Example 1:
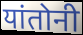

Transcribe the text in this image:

यांतोनी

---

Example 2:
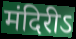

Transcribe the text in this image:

मंदिरीऽ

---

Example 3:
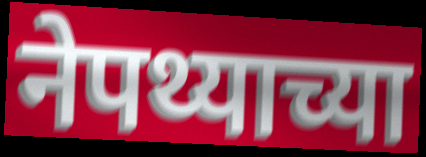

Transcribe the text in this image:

नेपथ्याच्या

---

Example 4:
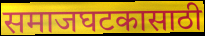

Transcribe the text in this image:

समाजघटकासाठी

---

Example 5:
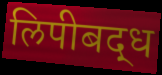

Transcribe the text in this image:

लिपीबद्ध